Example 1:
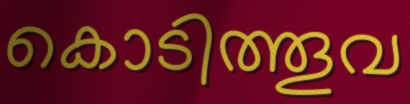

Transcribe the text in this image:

കൊടിത്തൂവ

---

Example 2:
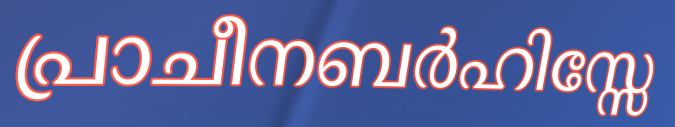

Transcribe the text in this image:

പ്രാചീനബർഹിസ്സേ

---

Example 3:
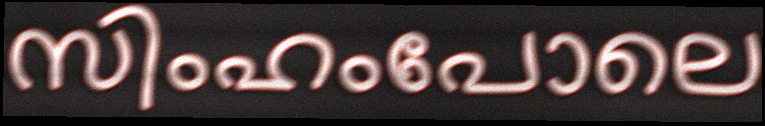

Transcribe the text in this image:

സിംഹംപോലെ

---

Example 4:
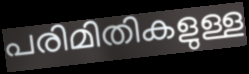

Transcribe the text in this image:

പരിമിതികളുള്ള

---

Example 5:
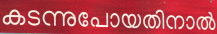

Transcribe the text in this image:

കടന്നുപോയതിനാൽ